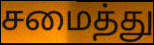
சமைத்து